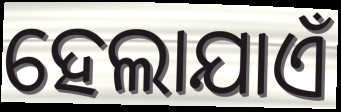
ହେଲାଯାଏଁ